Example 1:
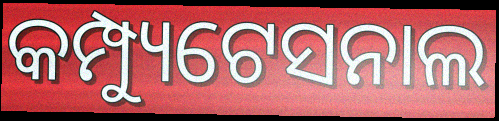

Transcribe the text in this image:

କମ୍ପ୍ୟୁଟେସନାଲ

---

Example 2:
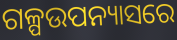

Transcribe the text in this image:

ଗଳ୍ପଉପନ୍ୟାସରେ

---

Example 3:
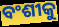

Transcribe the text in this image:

ବଂଶୀକୁ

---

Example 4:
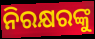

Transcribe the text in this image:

ନିରକ୍ଷରଙ୍କୁ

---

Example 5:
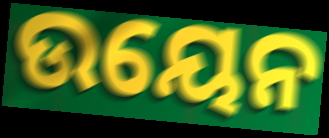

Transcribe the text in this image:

ଉୟେନ